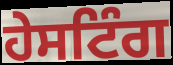
ਹੇਸਟਿੰਗ